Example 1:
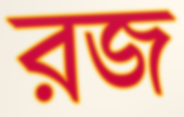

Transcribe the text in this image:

রজ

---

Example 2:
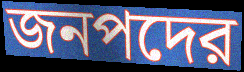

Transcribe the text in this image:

জনপদের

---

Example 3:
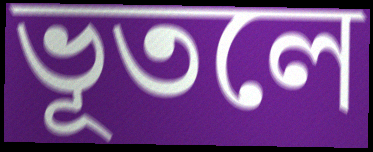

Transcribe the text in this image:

ভূতলে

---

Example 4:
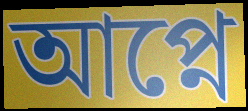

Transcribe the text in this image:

আপ্নে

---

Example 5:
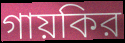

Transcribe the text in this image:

গায়কির